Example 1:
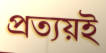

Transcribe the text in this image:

প্রত্যয়ই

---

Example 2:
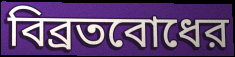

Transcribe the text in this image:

বিব্রতবোধের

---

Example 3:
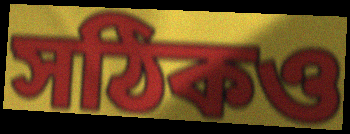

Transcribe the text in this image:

সঠিকও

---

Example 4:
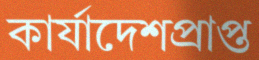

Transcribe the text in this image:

কার্যাদেশপ্রাপ্ত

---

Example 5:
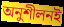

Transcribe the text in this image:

অনুশীলনই